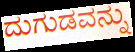
ದುಗುಡವನ್ನು